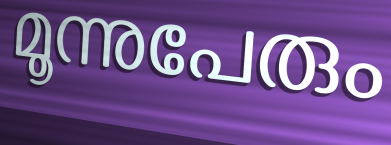
മൂന്നുപേരും